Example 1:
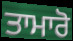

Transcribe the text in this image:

ਤਾਮਾਰੋ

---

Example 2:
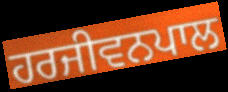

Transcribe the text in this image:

ਹਰਜੀਵਨਪਾਲ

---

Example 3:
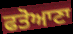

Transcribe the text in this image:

ਫਤੋਆਣਾ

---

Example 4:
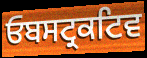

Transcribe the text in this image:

ਓਬਸਟ੍ਰਕਟਿਵ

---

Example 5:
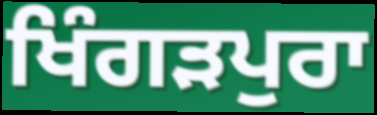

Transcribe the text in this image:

ਖਿੰਗੜਪੁਰਾ